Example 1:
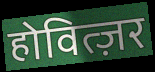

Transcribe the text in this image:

होवित्ज़र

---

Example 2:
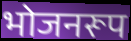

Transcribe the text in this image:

भोजनरूप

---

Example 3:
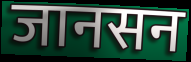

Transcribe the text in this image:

जानसन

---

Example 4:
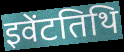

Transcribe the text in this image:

इवेंटतिथि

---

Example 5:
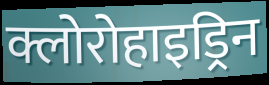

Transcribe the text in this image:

क्लोरोहाइड्रिन